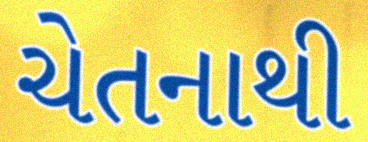
ચેતનાથી